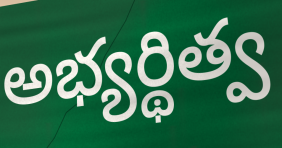
అభ్యర్థిత్వ